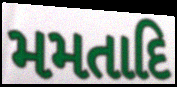
મમતાદિ